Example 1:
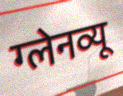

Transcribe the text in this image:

ग्लेनव्यू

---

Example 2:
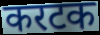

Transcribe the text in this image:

करटक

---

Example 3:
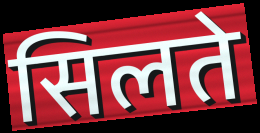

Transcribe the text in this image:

सिलते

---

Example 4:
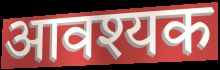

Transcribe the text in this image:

आवश्‍यक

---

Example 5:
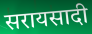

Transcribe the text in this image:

सरायसादी